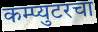
कम्प्युटरचा